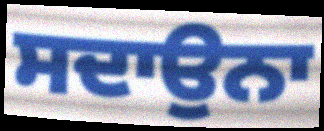
ਸਦਾਉਨਾ